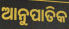
ଆନୁପାତିକ